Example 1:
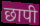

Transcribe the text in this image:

छापी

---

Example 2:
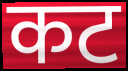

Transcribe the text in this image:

कट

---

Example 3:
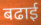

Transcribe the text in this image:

बढाई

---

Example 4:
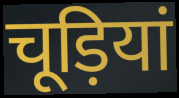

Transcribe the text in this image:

चूड़ियां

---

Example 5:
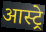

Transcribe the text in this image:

आस्ट्रे